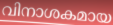
വിനാശകമായ